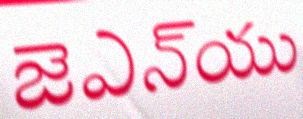
జెఎన్‌యు